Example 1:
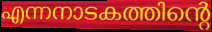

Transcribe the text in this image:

എന്നനാടകത്തിന്റെ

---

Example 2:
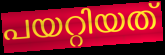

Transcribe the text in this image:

പയറ്റിയത്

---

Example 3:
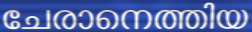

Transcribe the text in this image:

ചേരാനെത്തിയ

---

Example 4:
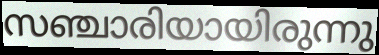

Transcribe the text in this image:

സഞ്ചാരിയായിരുന്നു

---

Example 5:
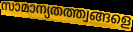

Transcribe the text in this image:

സാമാന്യതത്ത്വങ്ങളെ